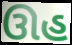
ઊહ